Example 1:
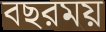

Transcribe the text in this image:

বছরময়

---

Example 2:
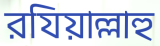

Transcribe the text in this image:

রযিয়াল্লাহু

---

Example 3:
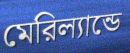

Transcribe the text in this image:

মেরিল্যান্ডে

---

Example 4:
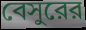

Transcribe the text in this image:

বেসুরের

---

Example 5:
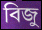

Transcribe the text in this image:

বিজু